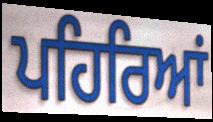
ਪਹਿਰਿਆਂ